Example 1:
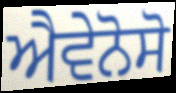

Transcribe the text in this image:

ਐਵੇਨੋਸੋ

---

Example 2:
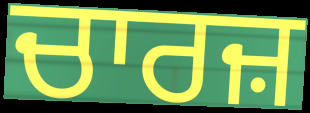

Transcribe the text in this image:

ਚਾਰਜ਼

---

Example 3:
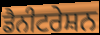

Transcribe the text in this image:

ਡੈਨੀਟਰੇਸ਼ਨ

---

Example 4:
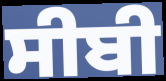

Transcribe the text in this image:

ਸੀਬੀ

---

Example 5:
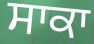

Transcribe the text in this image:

ਸਾਕਾ